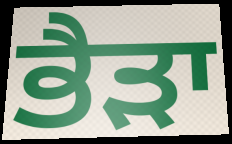
ਭੈੜਾ